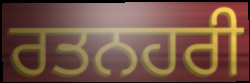
ਰਤਨਹਰੀ